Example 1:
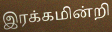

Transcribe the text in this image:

இரக்கமின்றி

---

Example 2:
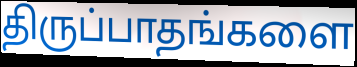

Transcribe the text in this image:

திருப்பாதங்களை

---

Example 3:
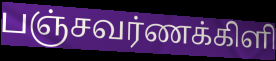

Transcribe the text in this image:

பஞ்சவர்ணக்கிளி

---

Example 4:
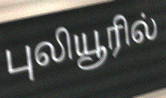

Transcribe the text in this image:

புலியூரில்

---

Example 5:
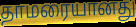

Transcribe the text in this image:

தாமரையானது